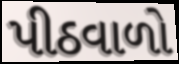
પીઠવાળો